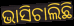
ଭାସିଚାଲିଛି